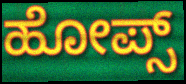
ಹೋಪ್ಸ್